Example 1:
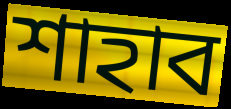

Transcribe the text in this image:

শাহাব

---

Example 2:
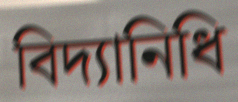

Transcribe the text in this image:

বিদ্যানিধি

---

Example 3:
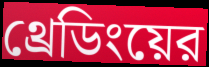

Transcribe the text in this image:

থ্রেডিংয়ের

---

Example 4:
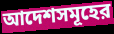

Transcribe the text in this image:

আদেশসমূহের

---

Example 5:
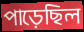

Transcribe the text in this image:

পাড়েছিল